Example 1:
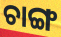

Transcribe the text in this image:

ଚାଙ୍ଗ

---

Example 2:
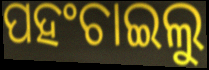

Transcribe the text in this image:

ପହଂଚାଇଲୁ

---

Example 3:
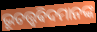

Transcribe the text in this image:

ଭୂତତ୍ତ୍ୱଵିଦମାନଙ୍କ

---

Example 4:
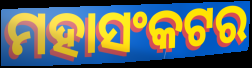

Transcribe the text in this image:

ମହାସଂକଟର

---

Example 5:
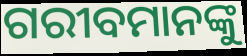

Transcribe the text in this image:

ଗରୀବମାନଙ୍କୁ